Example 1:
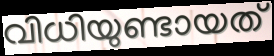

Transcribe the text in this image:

വിധിയുണ്ടായത്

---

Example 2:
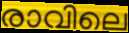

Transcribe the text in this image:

രാവിലെ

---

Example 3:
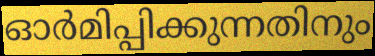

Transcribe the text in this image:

ഓർമിപ്പിക്കുന്നതിനും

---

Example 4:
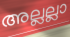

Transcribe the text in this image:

അല്ലല്ലാ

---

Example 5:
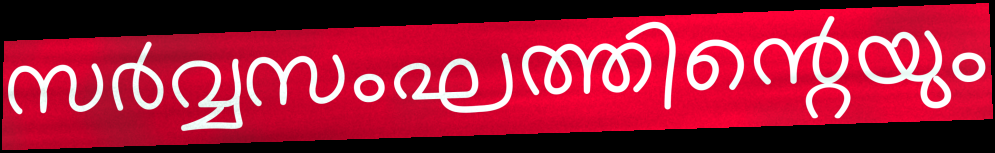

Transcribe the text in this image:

സർവ്വസംഘത്തിന്റെയും